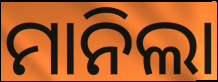
ମାନିଲା